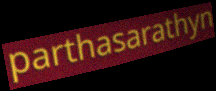
parthasarathyn